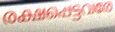
രക്ഷപ്പെട്ടവരേ